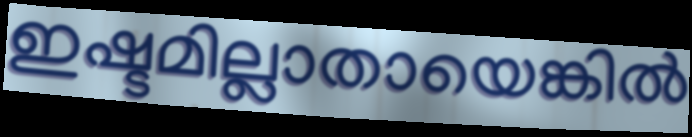
ഇഷ്ടമില്ലാതായെങ്കിൽ